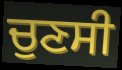
ਚੁਣਸੀ